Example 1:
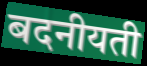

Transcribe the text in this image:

बदनीयती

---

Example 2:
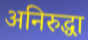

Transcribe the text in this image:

अनिरुद्धा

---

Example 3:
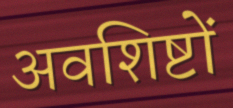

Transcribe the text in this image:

अवशिष्टों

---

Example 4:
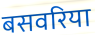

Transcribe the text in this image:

बसवरिया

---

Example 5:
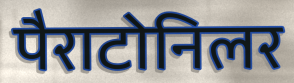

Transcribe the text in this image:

पैराटोनिलर